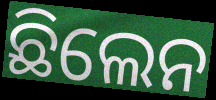
ଛିଲେନ